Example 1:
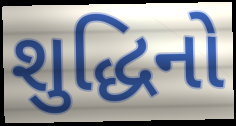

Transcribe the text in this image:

શુદ્ધિનો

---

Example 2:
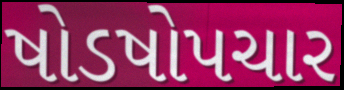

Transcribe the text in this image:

ષોડષોપચાર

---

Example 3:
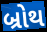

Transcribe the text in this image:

બ્રોથ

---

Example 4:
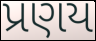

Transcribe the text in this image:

પ્રણય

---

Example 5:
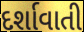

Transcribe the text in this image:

દર્શાવાતી